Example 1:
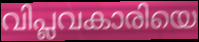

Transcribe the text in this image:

വിപ്ലവകാരിയെ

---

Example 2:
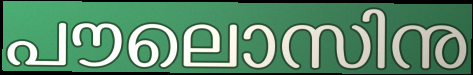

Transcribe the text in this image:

പൗലൊസിനു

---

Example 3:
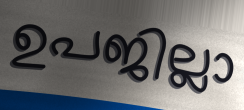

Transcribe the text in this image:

ഉപജില്ലാ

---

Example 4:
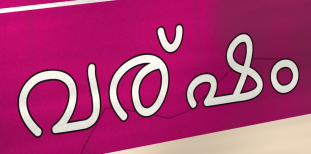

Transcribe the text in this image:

വര്ഷം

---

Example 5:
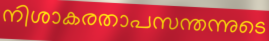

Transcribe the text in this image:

നിശാകരതാപസന്തന്നുടെ